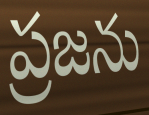
ప్రజను